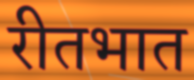
रीतभात